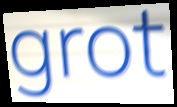
grot